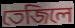
তেজিলে